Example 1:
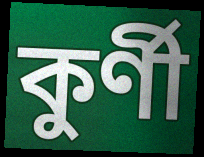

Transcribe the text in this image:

কুর্ণী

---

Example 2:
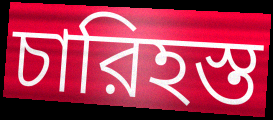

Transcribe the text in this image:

চারিহস্ত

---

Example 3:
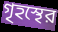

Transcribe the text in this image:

গৃহস্থের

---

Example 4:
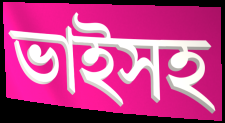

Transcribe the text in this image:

ভাইসহ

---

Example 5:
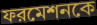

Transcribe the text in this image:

ফরমেশনকে